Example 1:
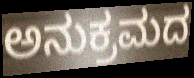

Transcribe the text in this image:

ಅನುಕ್ರಮದ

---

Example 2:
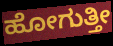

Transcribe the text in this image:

ಹೋಗುತ್ತೀ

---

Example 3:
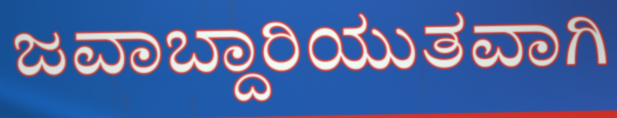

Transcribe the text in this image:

ಜವಾಬ್ದಾರಿಯುತವಾಗಿ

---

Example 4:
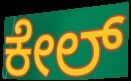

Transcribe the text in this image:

ಕೇಲ್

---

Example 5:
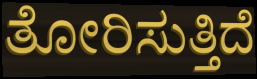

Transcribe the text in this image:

ತೋರಿಸುತ್ತಿದೆ